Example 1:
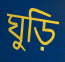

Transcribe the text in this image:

ঘুড়ি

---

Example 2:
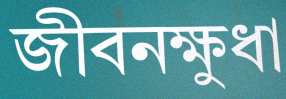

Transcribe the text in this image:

জীবনক্ষুধা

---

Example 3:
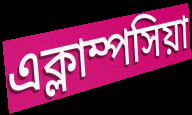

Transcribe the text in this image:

এক্লাম্পসিয়া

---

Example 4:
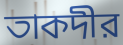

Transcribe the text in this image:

তাকদীর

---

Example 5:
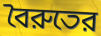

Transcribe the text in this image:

বৈরুতের